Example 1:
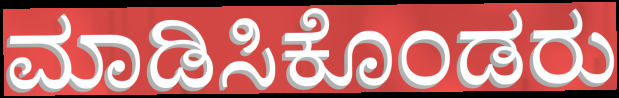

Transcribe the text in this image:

ಮಾಡಿಸಿಕೊಂಡರು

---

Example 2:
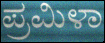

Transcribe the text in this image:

ಪ್ರಮಿಳಾ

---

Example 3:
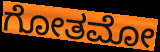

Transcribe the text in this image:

ಗೋತಮೋ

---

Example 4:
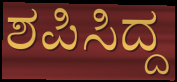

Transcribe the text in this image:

ಶಪಿಸಿದ್ದ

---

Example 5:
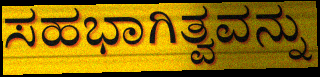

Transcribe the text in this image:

ಸಹಭಾಗಿತ್ವವನ್ನು